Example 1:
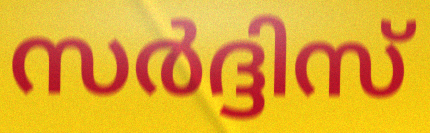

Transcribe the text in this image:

സർദ്ദിസ്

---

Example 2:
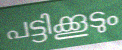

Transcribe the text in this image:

പട്ടിക്കൂടും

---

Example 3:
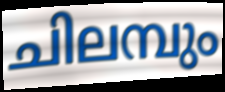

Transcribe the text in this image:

ചിലമ്പും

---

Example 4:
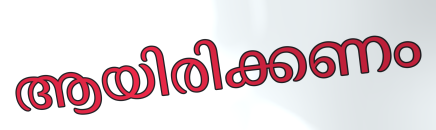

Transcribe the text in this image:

ആയിരിക്കണം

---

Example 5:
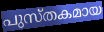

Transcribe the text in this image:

പുസ്തകമായ